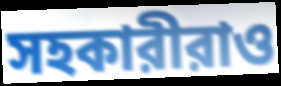
সহকারীরাও